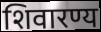
शिवारण्य